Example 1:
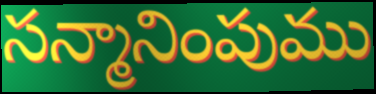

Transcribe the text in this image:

సన్మానింపుము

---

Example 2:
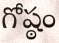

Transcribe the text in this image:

గోష్ఠం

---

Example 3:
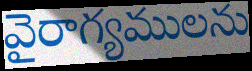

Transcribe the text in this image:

వైరాగ్యములను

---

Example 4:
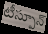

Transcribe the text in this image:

టీస్పూన్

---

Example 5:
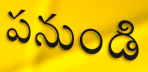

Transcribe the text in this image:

పనుండి